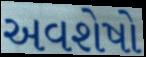
અવશેષો